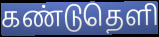
கண்டுதெளி